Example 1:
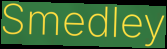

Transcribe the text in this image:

Smedley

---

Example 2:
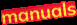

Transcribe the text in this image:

manuals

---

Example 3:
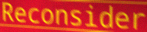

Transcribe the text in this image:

Reconsider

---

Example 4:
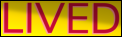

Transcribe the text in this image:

LIVED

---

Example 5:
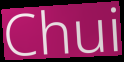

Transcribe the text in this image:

Chui